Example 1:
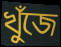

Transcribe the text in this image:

খুঁজে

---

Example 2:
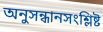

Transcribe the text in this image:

অনুসন্ধানসংশ্লিষ্ট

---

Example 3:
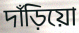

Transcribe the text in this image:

দাঁড়িয়ো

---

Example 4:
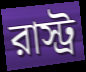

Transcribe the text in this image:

রাস্ট্র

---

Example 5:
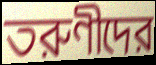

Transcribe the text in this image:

তরুণীদের